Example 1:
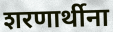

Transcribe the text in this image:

शरणार्थीना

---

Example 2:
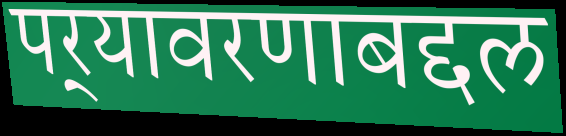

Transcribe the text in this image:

पर्यावरणाबद्दल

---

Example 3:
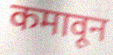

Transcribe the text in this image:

कमावून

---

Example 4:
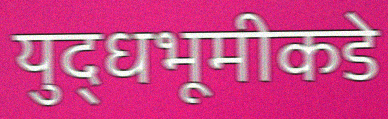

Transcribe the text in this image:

युद्धभूमीकडे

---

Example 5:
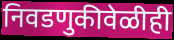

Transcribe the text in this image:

निवडणुकीवेळीही